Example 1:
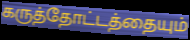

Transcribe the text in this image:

கருத்தோட்டத்தையும்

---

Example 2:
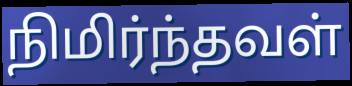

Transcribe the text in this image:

நிமிர்ந்தவள்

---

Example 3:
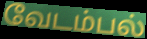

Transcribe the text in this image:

வேடம்பல்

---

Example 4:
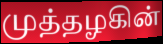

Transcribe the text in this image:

முத்தழகின்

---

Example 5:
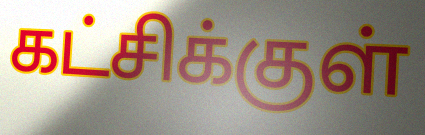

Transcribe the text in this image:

கட்சிக்குள்